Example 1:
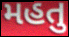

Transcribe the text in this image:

મહતુ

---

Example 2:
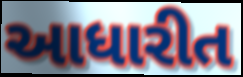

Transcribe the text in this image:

આધારીત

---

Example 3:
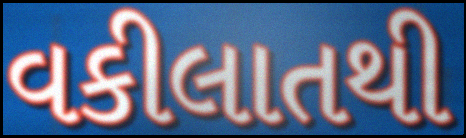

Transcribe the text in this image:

વકીલાતથી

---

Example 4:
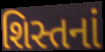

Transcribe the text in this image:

શિસ્તનાં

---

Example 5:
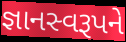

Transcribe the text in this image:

જ્ઞાનસ્વરૂપને